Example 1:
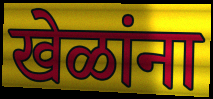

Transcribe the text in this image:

खेळांना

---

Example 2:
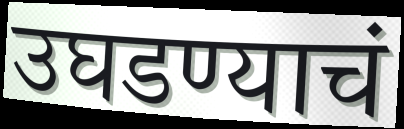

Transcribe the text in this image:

उघडण्याचं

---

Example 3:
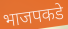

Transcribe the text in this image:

भाजपकडे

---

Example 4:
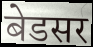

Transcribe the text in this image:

बेडसर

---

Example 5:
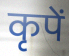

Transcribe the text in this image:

कृपें